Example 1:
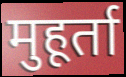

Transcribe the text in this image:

मुहूर्ता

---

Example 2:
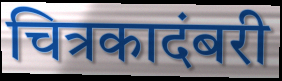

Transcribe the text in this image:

चित्रकादंबरी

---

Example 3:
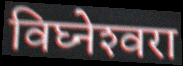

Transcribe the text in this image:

विघ्नेश्वरा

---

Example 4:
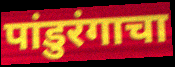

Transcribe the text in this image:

पांडुरंगाचा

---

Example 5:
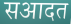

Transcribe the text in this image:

सआदत